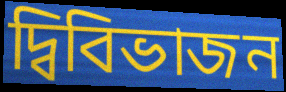
দ্বিবিভাজন